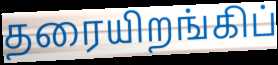
தரையிறங்கிப்